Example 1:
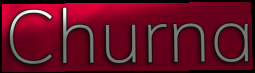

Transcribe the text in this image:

Churna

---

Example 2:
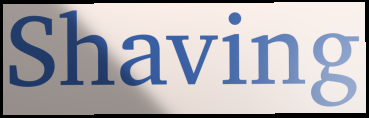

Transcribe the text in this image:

Shaving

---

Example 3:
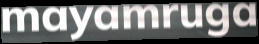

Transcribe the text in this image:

mayamruga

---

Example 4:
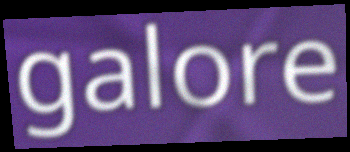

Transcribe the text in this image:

galore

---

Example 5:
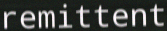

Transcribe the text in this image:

remittent